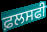
ਫ਼ਲਸਫੀ